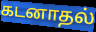
கடனாதல்